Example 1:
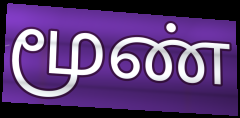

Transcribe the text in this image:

மூண்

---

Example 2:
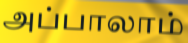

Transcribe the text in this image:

அப்பாலாம்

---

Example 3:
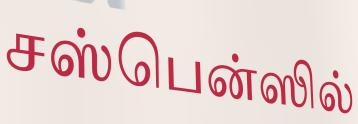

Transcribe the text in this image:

சஸ்பென்ஸில்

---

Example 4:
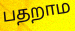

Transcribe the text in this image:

பதறாம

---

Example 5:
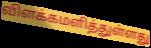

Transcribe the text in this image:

விளக்கமளித்துள்ளது